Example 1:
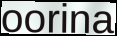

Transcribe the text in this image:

oorina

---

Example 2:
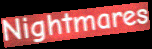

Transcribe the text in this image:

Nightmares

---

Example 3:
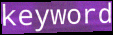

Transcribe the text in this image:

keyword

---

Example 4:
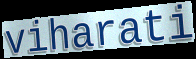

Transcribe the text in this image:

viharati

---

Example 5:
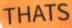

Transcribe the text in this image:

THATS